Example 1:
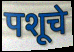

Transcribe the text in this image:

पशूचे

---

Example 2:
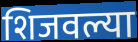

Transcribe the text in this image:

शिजवल्या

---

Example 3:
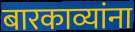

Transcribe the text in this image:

बारकाव्यांना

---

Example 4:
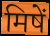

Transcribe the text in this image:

मिषें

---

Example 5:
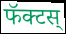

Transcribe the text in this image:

फॅक्टस्